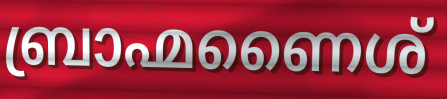
ബ്രാഹ്മണൈശ്